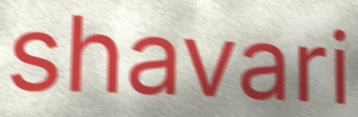
shavari